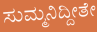
ಸುಮ್ಮನಿದ್ದೀತೇ